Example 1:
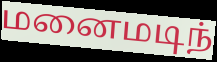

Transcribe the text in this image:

மனைமடிந்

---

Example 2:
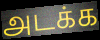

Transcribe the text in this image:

அடக்க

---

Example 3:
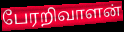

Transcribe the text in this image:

பேரறிவாளன்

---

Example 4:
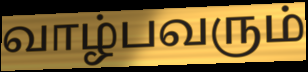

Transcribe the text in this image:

வாழ்பவரும்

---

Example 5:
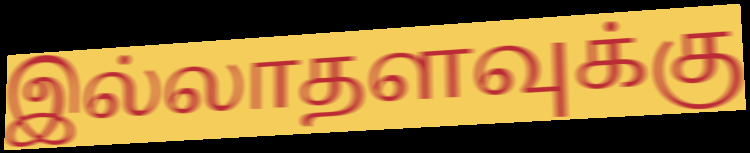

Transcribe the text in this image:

இல்லாதளவுக்கு